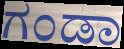
ಗಂಡಾ